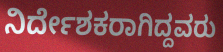
ನಿರ್ದೇಶಕರಾಗಿದ್ದವರು